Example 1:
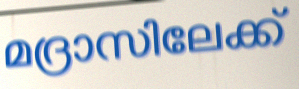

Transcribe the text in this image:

മദ്രാസിലേക്ക്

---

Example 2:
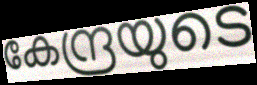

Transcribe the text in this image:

കേന്ദ്രയുടെ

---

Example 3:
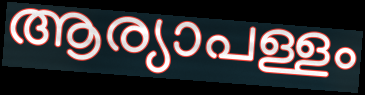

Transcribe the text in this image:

ആര്യാപള്ളം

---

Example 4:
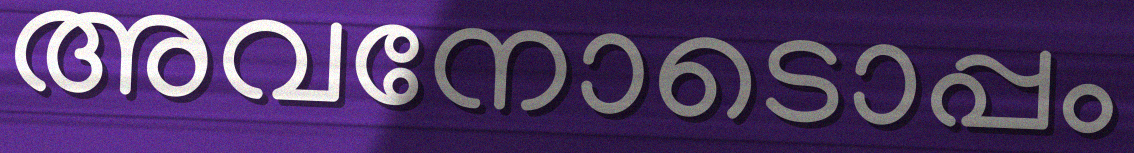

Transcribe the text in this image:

അവനോടൊപ്പം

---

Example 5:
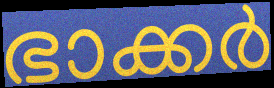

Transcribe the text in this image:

ഭാക്കർ